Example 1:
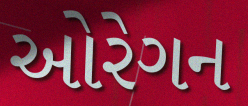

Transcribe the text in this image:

ઓરેગન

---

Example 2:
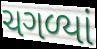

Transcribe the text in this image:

ચગળ્યાં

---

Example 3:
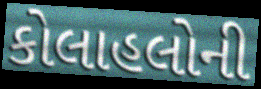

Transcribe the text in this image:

કોલાહલોની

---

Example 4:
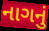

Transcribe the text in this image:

નાગનું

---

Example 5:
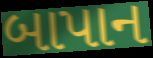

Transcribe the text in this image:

બાપાન